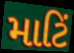
માટિં